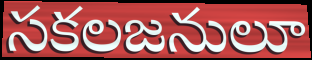
సకలజనులూ